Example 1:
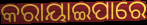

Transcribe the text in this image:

କରାୟାଇପାରେ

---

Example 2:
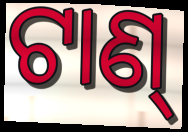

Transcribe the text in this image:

ଟାଣ୍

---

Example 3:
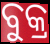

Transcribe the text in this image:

ବୁକ୍ର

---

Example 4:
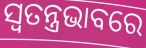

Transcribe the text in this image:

ସ୍ଵତନ୍ତ୍ରଭାବରେ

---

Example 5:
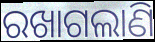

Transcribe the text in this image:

ରଖାଗଲାଣି